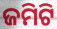
ଜମିଟି